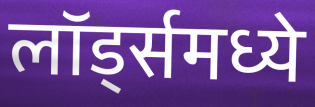
लॉर्ड्समध्ये